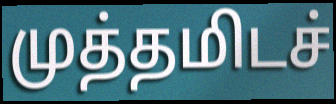
முத்தமிடச்